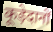
कूड़ेदानों